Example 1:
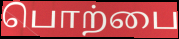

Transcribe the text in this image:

பொற்பை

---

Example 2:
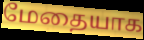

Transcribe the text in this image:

மேதையாக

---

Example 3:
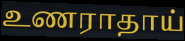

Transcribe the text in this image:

உணராதாய்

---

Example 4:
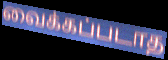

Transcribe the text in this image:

வைக்கப்படாத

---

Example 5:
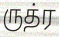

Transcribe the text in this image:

ருத்ர